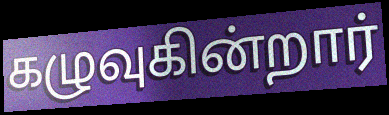
கழுவுகின்றார்